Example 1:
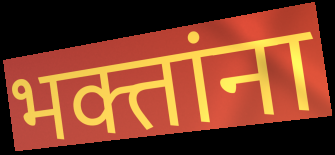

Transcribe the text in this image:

भक्तांना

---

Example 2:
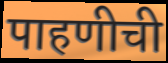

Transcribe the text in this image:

पाहणीची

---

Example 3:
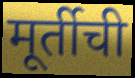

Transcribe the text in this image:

मूर्तीची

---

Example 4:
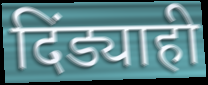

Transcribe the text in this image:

दिंड्याही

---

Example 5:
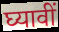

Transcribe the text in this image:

घ्यावीं